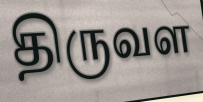
திருவள